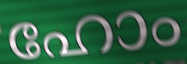
ഹോം